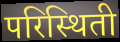
परिस्थिती